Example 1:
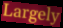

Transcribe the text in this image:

Largely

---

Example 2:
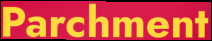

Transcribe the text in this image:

Parchment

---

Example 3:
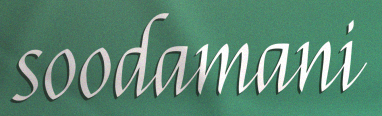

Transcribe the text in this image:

soodamani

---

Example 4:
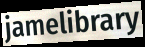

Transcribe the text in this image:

jamelibrary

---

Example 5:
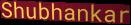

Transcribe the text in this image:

Shubhankar